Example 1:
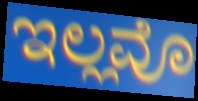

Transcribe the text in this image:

ಇಲ್ಲವೊ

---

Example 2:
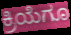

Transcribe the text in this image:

ಕ್ರಿಯೆಗೂ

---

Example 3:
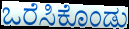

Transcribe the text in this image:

ಒರೆಸಿಕೊಂಡು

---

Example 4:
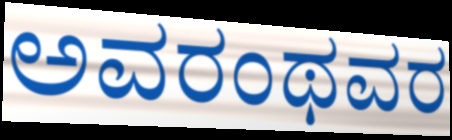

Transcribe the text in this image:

ಅವರಂಥವರ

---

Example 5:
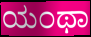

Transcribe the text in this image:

ಯಂಥಾ